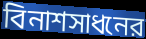
বিনাশসাধনের